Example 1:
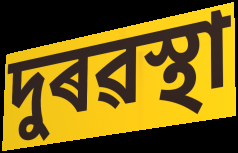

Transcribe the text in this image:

দুৰৱস্থা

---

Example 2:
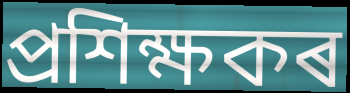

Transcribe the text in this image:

প্ৰশিক্ষকৰ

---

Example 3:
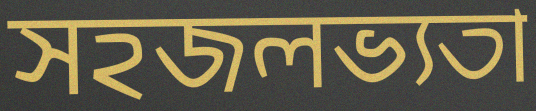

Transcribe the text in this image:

সহজলভ্যতা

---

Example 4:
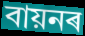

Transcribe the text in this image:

বায়নৰ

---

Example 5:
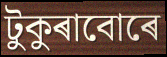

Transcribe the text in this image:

টুকুৰাবোৰে